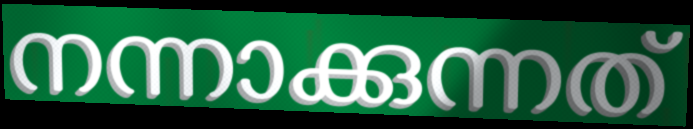
നന്നാക്കുന്നത്